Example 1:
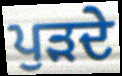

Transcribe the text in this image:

ਪੁੜਦੇ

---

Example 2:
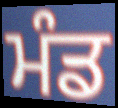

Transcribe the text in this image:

ਮੰਡ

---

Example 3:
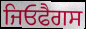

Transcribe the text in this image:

ਜਿਓਫੈਗਸ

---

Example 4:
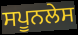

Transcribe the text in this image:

ਸਪੂਨਲੇਸ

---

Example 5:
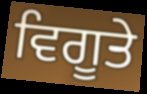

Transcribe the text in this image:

ਵਿਗੂਤੇ